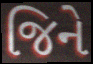
જિને